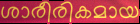
ശാരീരികമായ